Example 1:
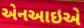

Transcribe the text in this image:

એનઆઇએ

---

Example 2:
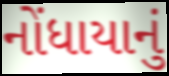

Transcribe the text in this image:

નોંધાયાનું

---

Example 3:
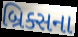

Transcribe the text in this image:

બ્રિક્સના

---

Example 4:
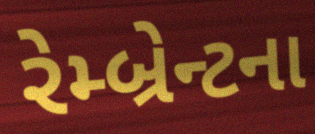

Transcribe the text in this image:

રેમ્બ્રેન્ટના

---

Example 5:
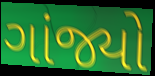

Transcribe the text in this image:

ગાંજ્યો